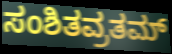
ಸಂಶಿತವ್ರತಮ್